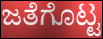
ಜತೆಗೊಟ್ಟ